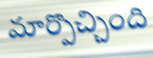
మార్పొచ్చింది